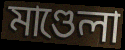
মাণ্ডেলা